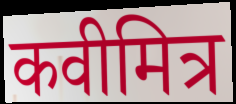
कवीमित्र